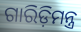
ଗାରିଡ଼ିମନ୍ତ୍ର